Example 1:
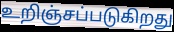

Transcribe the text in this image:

உறிஞ்சப்படுகிறது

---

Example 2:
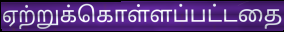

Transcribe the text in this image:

ஏற்றுக்கொள்ளப்பட்டதை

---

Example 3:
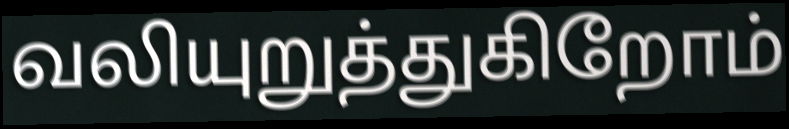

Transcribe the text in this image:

வலியுறுத்துகிறோம்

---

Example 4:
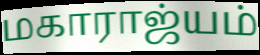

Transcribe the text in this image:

மகாராஜ்யம்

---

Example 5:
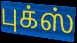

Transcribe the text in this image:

புக்ஸ்